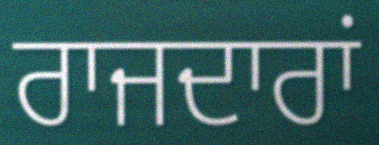
ਰਾਜਦਾਰਾਂ